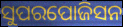
ସୁପରପୋଜିସନ